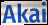
Akai